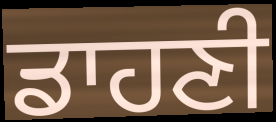
ਡਾਹਣੀ